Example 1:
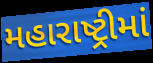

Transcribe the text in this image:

મહારાષ્ટ્રીમાં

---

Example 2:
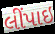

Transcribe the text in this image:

લીંપાઇ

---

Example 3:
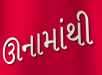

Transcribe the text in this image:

ઊનામાંથી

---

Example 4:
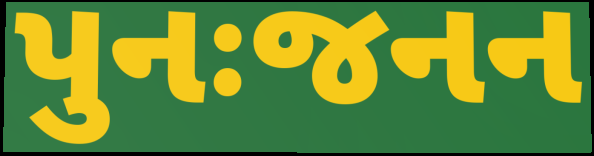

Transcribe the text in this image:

પુનઃજનન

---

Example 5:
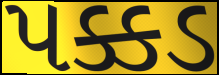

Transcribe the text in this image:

પક્કડ